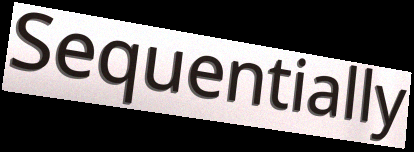
Sequentially